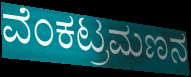
ವೆಂಕಟ್ರಮಣನ